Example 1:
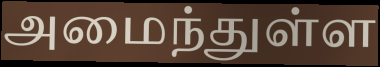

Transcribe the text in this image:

அமைந்துள்ள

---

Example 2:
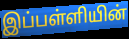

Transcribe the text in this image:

இப்பள்ளியின்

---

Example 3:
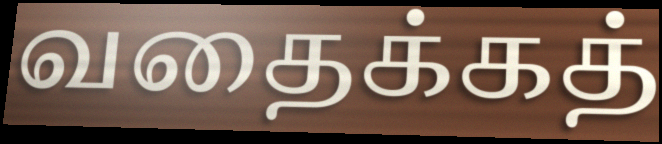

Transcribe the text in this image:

வதைக்கத்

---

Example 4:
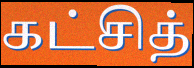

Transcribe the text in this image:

கட்சித்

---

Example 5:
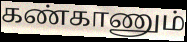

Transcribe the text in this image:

கண்காணும்